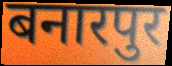
बनारपुर